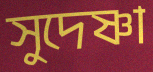
সুদেষ্ণা